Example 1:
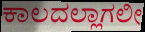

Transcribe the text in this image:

ಕಾಲದಲ್ಲಾಗಲೀ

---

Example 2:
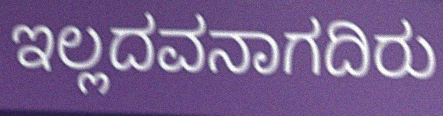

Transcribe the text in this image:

ಇಲ್ಲದವನಾಗದಿರು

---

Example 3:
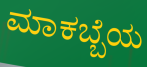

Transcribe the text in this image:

ಮಾಕಬ್ಬೆಯ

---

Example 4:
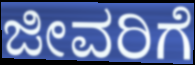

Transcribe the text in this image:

ಜೀವರಿಗೆ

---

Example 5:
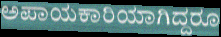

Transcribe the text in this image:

ಅಪಾಯಕಾರಿಯಾಗಿದ್ದರೂ